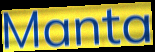
Manta